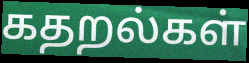
கதறல்கள்